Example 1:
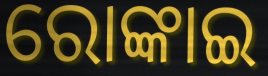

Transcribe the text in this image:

ରୋଙ୍କାଇ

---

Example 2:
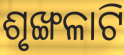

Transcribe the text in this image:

ଶୃଙ୍ଖଳାଟି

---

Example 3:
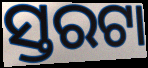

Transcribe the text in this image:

ସ୍ତରଟା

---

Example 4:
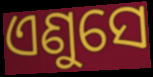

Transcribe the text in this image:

ଏଣୁସେ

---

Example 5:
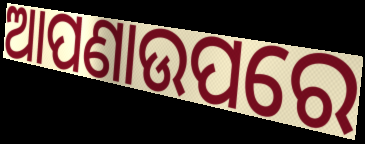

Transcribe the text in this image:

ଆପଣାଉପରେ